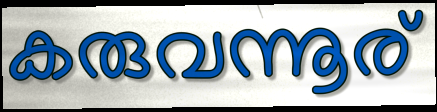
കരുവന്നൂര്